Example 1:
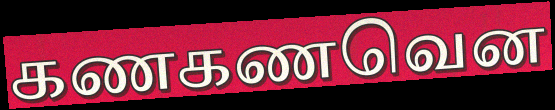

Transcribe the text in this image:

கணகணவென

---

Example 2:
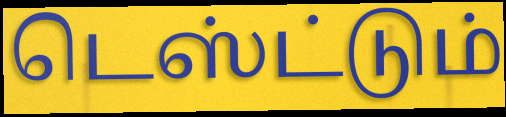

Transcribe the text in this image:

டெஸ்ட்டும்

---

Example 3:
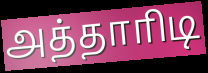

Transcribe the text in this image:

அத்தாரிடி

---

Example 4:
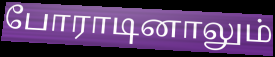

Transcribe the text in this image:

போராடினாலும்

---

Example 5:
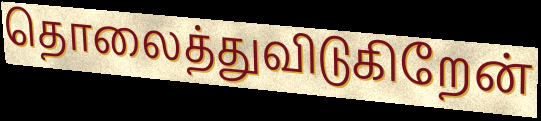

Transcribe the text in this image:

தொலைத்துவிடுகிறேன்